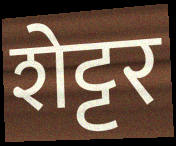
शेट्टर